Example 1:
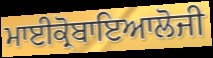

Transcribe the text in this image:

ਮਾਈਕ੍ਰੋਬਾਇਆਲੋਜੀ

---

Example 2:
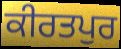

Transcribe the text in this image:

ਕੀਰਤਪੁਰ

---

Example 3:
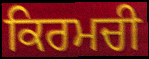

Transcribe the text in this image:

ਕਿਰਮਚੀ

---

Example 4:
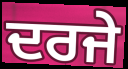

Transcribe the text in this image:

ਦਰਜੇ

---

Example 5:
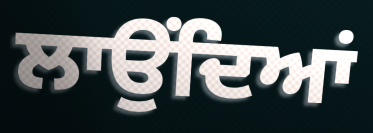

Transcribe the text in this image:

ਲਾਉਂਦਿਆਂ